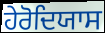
ਹੇਰੋਦਿਯਾਸ